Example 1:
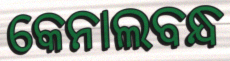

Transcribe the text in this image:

କେନାଲବନ୍ଧ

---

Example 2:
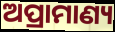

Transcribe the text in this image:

ଅପ୍ରାମାଣ୍ୟ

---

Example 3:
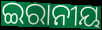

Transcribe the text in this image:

ଇରାନୀୟ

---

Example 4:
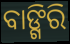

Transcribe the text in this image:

ବାଙ୍ଗିରି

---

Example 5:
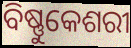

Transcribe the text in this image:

ବିଷ୍ଣୁକେଶରୀ